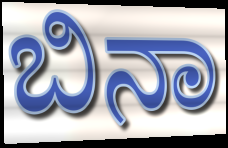
ಬಿನಾ